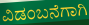
ವಿಡಂಬನೆಗಾಗಿ